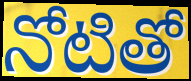
నోటితో